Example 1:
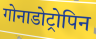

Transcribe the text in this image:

गोनाडोट्रोपिन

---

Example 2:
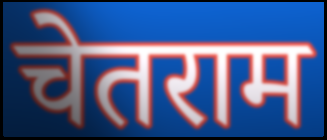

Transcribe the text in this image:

चेतराम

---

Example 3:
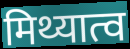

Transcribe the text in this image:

मिथ्‍यात्‍व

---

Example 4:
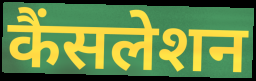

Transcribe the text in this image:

कैंसलेशन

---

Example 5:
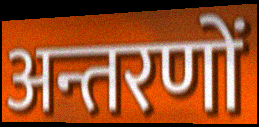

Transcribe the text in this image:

अन्तरणों